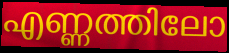
എണ്ണത്തിലോ